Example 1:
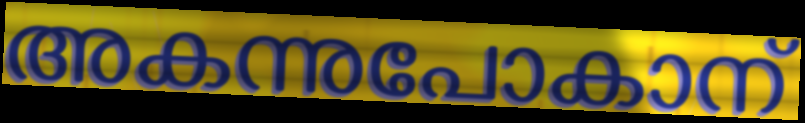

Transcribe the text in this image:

അകന്നുപോകാന്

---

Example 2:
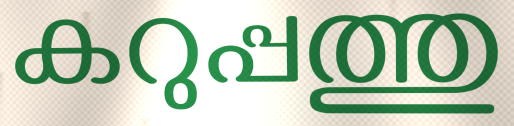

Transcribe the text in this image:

കറുപ്പത്തു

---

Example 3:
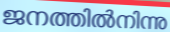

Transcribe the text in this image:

ജനത്തിൽനിന്നു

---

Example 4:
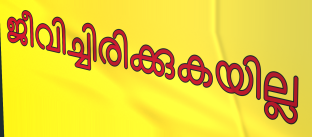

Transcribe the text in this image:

ജീവിച്ചിരിക്കുകയില്ല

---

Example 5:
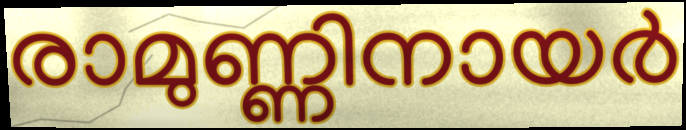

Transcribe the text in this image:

രാമുണ്ണിനായർ